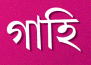
গাহি